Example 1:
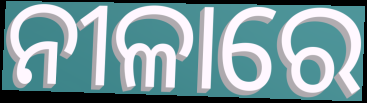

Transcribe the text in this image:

ନୀଳାରେ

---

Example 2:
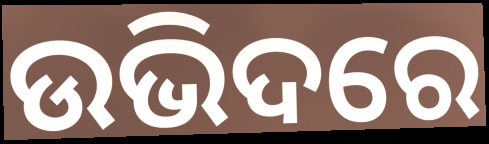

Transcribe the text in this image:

ଉଭିଦରେ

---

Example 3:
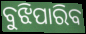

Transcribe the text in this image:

ବୁଝିପାରିବ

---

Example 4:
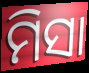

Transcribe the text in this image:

ମିସା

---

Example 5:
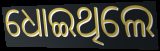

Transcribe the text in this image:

ଧୋଇଥିଲେ